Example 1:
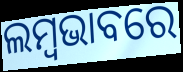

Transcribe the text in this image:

ଲମ୍ବଭାବରେ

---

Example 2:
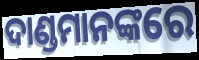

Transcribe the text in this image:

ଦାଣ୍ଡମାନଙ୍କରେ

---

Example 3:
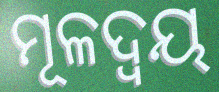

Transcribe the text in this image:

ମୂଳଦ୍ୱୟ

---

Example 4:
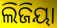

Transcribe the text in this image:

ଲିଜିୟା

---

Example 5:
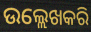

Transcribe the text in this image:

ଉଲ୍ଲେଖକରି